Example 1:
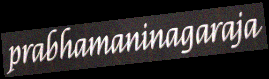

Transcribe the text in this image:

prabhamaninagaraja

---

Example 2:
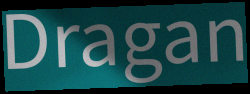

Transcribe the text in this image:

Dragan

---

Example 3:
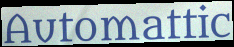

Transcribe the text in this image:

Automattic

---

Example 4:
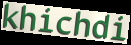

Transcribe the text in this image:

khichdi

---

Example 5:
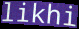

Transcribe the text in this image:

likhi